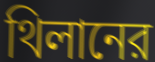
থিলানের